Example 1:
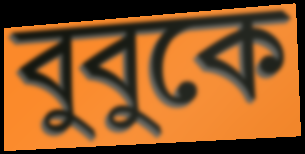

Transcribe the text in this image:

বুবুকে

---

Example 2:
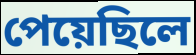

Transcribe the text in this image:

পেয়েছিলে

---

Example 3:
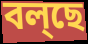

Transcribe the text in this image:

বল্ছে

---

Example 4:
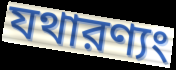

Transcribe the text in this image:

যথারণ্যং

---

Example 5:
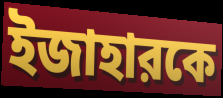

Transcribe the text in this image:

ইজাহারকে